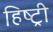
हिष्ट्री